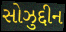
સોઝુદ્દીન